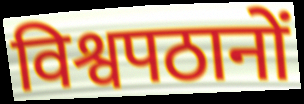
विश्वपठानों